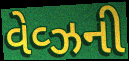
વેવ્ઝની